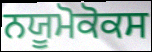
ਨਯੂਮੋਕੋਕਸ